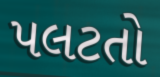
પલટતો